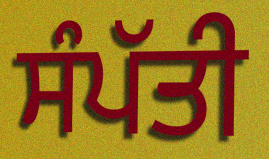
ਸੰਪੱਤੀ